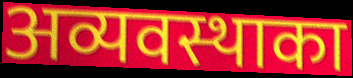
अव्यवस्थाका